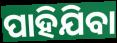
ପାହିଯିବା